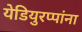
येडियुरप्पांना